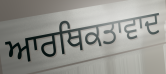
ਆਰਥਿਕਤਾਵਾਦ